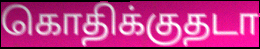
கொதிக்குதடா